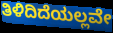
ತಿಳಿದಿದೆಯಲ್ಲವೇ